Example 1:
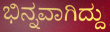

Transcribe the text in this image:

ಭಿನ್ನವಾಗಿದ್ದು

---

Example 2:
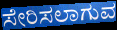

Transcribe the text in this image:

ಸೇರಿಸಲಾಗುವ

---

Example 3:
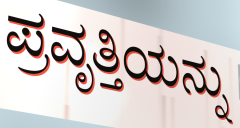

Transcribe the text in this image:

ಪ್ರವೃತ್ತಿಯನ್ನು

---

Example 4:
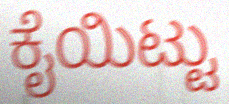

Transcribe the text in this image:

ಕೈಯಿಟ್ಟು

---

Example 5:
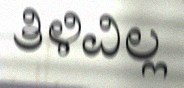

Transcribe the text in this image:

ತಿಳಿವಿಲ್ಲ